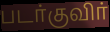
படர்குவிர்